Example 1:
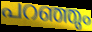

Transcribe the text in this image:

പറഞ്ഞും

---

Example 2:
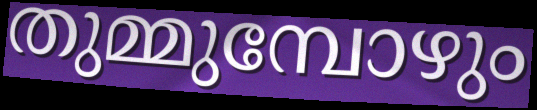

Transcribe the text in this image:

തുമ്മുമ്പോഴും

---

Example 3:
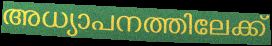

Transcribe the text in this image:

അധ്യാപനത്തിലേക്ക്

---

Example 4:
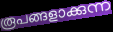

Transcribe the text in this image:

രൂപങ്ങളാക്കുന്ന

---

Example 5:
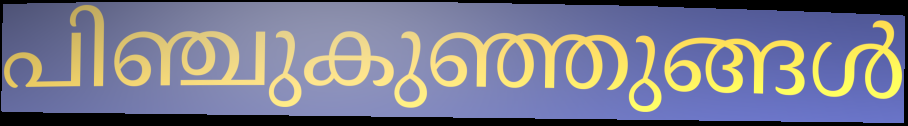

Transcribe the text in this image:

പിഞ്ചുകുഞ്ഞുങ്ങൾ